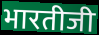
भारतीजी